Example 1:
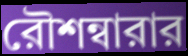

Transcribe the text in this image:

রৌশন্বারার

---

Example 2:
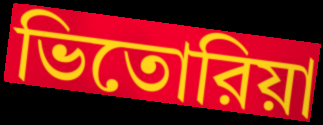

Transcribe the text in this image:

ভিতোরিয়া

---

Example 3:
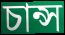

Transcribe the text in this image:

চান্স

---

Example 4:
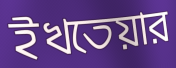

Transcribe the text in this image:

ইখতেয়ার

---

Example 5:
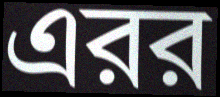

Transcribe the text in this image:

এরর